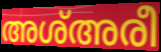
അശ്അരീ